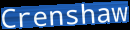
Crenshaw